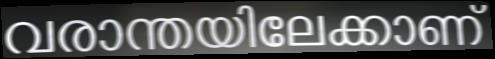
വരാന്തയിലേക്കാണ്